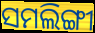
ସମଲିଙ୍ଗୀ